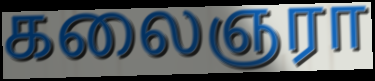
கலைஞரா